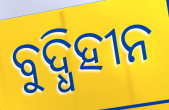
ବୁଦ୍ଧିହୀନ